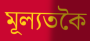
মূল্যতকৈ